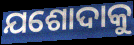
ଯଶୋଦାକୁ